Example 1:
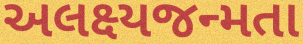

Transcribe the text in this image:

અલક્ષ્યજન્મતા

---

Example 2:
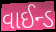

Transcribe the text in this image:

વાઈન્ડ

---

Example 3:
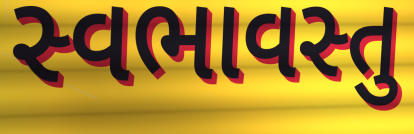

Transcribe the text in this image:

સ્વભાવસ્તુ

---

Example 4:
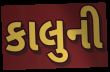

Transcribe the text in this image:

કાલુની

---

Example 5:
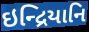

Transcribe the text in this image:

ઇન્દ્રિયાનિ